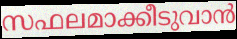
സഫലമാക്കീടുവാൻ